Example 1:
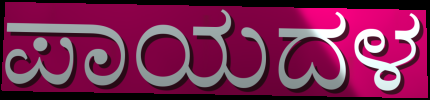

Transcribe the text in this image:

ಪಾಯದಳ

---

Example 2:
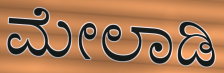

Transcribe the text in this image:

ಮೇಲಾಡಿ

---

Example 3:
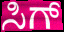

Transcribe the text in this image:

ಸಿಗ್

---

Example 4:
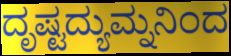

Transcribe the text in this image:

ದೃಷ್ಟದ್ಯುಮ್ನನಿಂದ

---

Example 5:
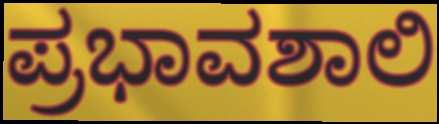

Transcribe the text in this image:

ಪ್ರಭಾವಶಾಲಿ